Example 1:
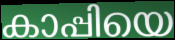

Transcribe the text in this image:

കാപ്പിയെ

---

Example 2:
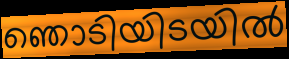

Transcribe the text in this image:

ഞൊടിയിടയിൽ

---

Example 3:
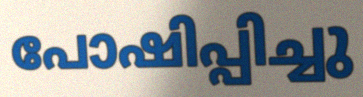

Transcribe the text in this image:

പോഷിപ്പിച്ചു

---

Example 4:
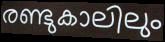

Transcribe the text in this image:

രണ്ടുകാലിലും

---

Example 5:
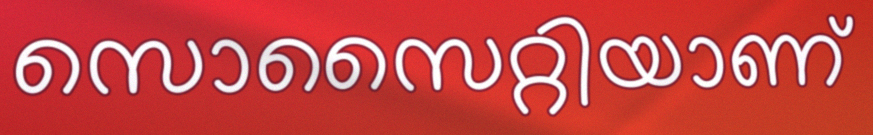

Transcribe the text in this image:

സൊസൈറ്റിയാണ്